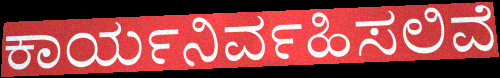
ಕಾರ್ಯನಿರ್ವಹಿಸಲಿವೆ